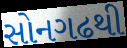
સોનગઢથી